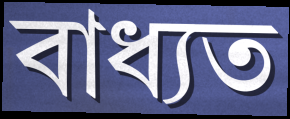
বাধ্যত